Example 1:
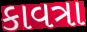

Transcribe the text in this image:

કાવત્રા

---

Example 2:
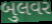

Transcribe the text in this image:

બુલવર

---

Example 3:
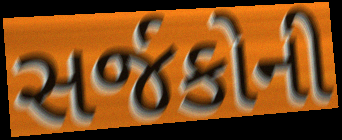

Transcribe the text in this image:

સર્જકોની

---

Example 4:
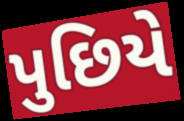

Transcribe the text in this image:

પુછિયે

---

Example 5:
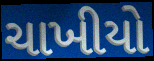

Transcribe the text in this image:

ચાખીયો